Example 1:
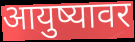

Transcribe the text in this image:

आयुष्यावर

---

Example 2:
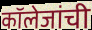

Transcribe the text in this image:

कॉलेजांची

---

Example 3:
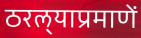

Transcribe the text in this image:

ठरल्याप्रमाणें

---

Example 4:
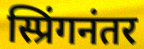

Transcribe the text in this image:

स्प्रिंगनंतर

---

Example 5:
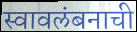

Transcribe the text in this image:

स्वावलंबनाची